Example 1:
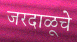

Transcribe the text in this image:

जरदाळूचे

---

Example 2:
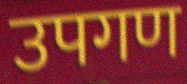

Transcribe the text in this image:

उपगण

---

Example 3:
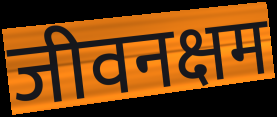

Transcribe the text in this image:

जीवनक्षम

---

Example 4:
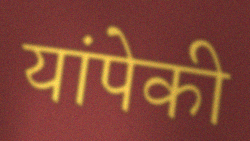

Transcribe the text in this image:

यांपेकी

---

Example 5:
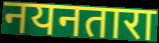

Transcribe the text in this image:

नयनतारा